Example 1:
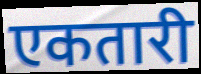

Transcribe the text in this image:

एकतारी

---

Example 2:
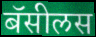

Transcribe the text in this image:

बॅसीलस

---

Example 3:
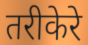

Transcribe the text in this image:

तरीकेरे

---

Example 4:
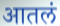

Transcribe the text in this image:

आतलं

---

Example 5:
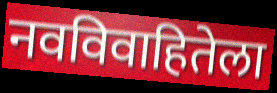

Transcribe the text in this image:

नवविवाहितेला